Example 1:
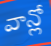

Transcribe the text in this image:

వాన్లో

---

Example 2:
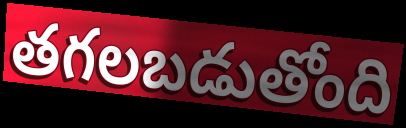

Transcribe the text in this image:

తగలబడుతోంది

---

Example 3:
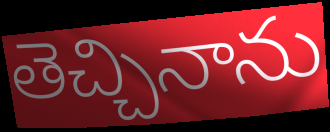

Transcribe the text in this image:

తెచ్చినాను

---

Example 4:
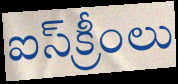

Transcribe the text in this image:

ఐస్‌క్రీంలు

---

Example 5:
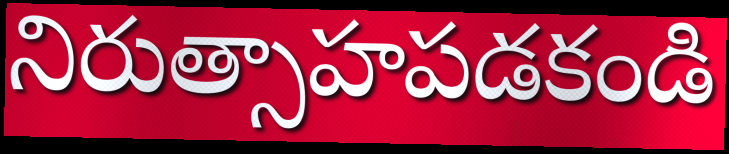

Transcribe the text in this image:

నిరుత్సాహపడకండి